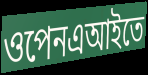
ওপেনএআইতে